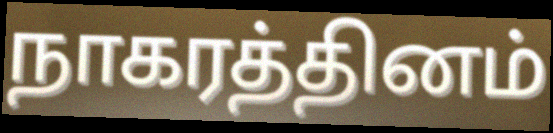
நாகரத்தினம்